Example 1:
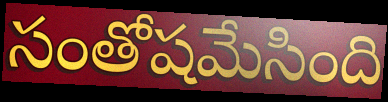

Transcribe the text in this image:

సంతోషమేసింది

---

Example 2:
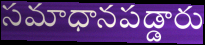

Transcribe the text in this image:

సమాధానపడ్డారు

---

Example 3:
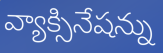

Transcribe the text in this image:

వ్యాక్సినేషన్ను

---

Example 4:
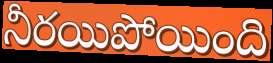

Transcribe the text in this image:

నీరయిపోయింది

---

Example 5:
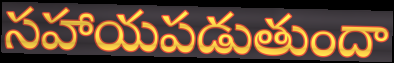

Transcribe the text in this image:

సహాయపడుతుందా